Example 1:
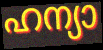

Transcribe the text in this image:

ഹന്യാ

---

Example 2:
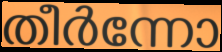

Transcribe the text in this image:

തീർന്നോ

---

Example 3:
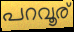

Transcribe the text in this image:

പറവൂര്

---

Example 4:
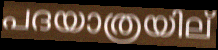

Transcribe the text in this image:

പദയാത്രയില്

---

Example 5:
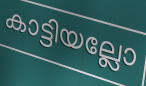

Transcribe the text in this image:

കാട്ടിയല്ലോ